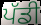
ਪੱਡੀ